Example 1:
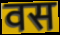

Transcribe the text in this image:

वस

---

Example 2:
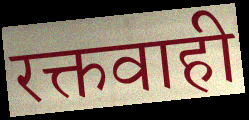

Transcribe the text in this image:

रक्तवाही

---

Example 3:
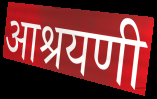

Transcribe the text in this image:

आश्रयणी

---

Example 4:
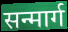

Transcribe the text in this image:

सन्‍मार्ग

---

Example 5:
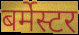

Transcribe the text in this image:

बर्मेस्टर